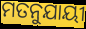
ମତନୁଯାୟୀ